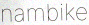
nambike